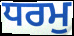
ਧਰਮੁ